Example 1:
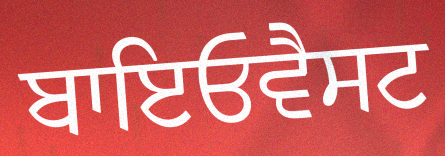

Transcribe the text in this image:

ਬਾਇਓਵੈਸਟ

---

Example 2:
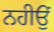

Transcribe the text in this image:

ਨਹੀਉਂ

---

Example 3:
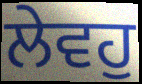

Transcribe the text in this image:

ਲੇਵਹੁ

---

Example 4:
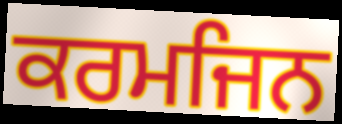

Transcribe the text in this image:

ਕਰਮਜਿਨ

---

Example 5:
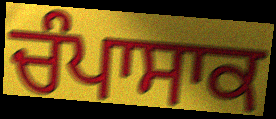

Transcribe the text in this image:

ਚੰਪਾਸਾਕ